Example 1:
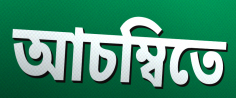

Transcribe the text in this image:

আচম্বিতে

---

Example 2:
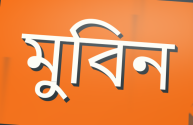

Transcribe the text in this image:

মুবিন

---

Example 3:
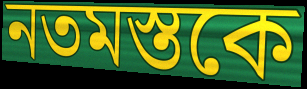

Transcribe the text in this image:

নতমস্তকে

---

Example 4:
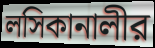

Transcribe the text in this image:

লসিকানালীর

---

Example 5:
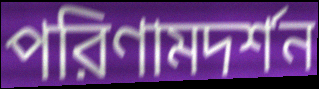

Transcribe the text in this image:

পরিণামদর্শন